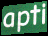
apti